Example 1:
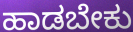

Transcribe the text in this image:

ಹಾಡಬೇಕು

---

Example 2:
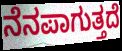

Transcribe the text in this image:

ನೆನಪಾಗುತ್ತದೆ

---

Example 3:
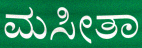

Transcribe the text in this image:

ಮಸೀತಾ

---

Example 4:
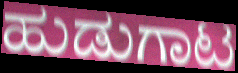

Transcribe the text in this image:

ಹುಡುಗಾಟ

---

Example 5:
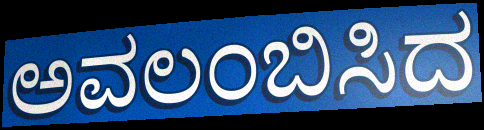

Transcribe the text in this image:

ಅವಲಂಬಿಸಿದ